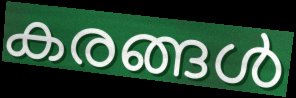
കരങ്ങൾ